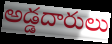
అడ్డదారులు